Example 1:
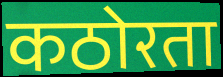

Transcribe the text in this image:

कठोरता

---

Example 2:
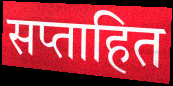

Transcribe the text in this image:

सप्ताहित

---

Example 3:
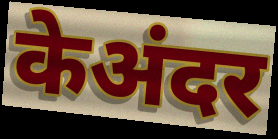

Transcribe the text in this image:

केअंदर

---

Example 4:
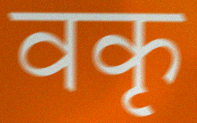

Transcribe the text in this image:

वकृ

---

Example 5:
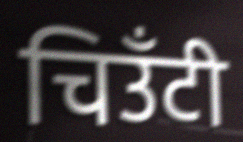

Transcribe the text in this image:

चिउँटी